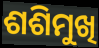
ଶଶିମୁଖି